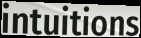
intuitions